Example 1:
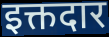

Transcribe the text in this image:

इक्तदार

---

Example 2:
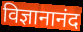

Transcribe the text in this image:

विज्ञानानंद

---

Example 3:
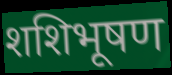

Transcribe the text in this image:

शशिभूषण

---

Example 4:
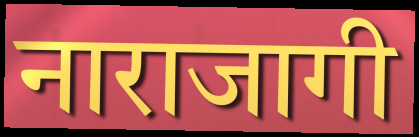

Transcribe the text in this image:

नाराजागी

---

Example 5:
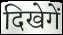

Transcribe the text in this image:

दिखेगें